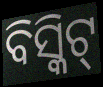
ବିସ୍କିଟ୍